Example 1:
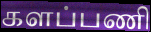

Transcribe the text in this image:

களப்பணி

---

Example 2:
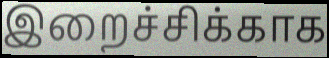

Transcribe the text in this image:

இறைச்சிக்காக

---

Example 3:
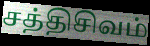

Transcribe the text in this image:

சத்திசிவம்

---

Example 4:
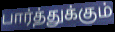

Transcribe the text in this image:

பார்த்துக்கும்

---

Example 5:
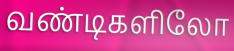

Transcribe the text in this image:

வண்டிகளிலோ